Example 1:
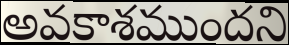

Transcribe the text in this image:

అవకాశముందని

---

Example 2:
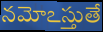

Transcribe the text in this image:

నమోఽస్తుతే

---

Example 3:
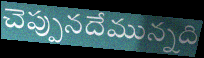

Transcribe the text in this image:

చెప్పునదేమున్నది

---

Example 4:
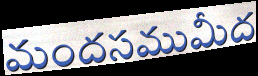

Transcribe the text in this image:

మందసముమీద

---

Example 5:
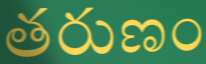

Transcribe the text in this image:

తరుణం